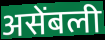
असेंबली